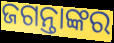
ଜଗନ୍ତାଙ୍କର